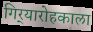
गिर्यारोहकाला